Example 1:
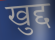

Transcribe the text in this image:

खुद्द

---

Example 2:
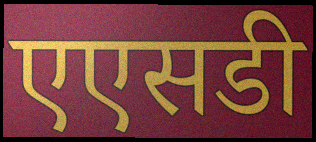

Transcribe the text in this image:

एएसडी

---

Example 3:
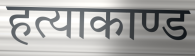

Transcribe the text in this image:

हत्याकाण्ड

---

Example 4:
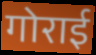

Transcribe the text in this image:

गोराई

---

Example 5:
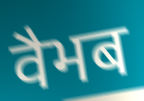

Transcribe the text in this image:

वैभब